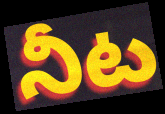
నీట